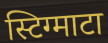
स्टिग्माटा